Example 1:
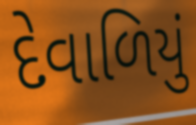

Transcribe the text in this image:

દેવાળિયું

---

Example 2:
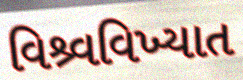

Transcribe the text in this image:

વિશ્ર્વવિખ્યાત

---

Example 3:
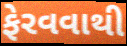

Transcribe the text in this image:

ફેરવવાથી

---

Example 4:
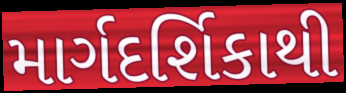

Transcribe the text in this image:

માર્ગદર્શિકાથી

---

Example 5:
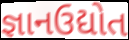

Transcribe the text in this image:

જ્ઞાનઉદ્યોત